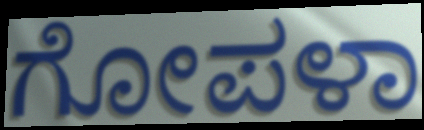
ಗೋಪಳಾ